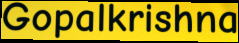
Gopalkrishna